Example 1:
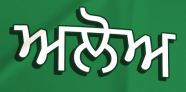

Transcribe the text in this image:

ਅਲੋਅ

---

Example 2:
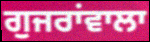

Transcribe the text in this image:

ਗੁਜਰਾਂਵਾਲਾ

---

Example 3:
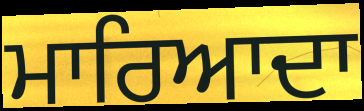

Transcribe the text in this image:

ਮਾਰਿਆਦਾ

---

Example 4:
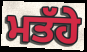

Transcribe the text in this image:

ਮਤੱਹੇ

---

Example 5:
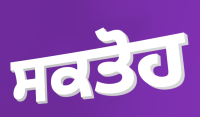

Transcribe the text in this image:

ਸਕਤੋਹ